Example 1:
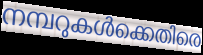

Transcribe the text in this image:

നമ്പറുകൾക്കെതിരെ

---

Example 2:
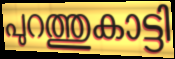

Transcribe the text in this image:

പുറത്തുകാട്ടി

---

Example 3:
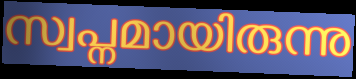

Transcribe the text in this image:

സ്വപ്നമായിരുന്നു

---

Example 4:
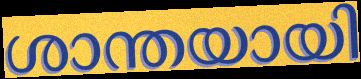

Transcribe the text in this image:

ശാന്തയായി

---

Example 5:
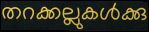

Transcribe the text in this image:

തറക്കല്ലുകൾക്കു